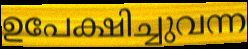
ഉപേക്ഷിച്ചുവന്ന